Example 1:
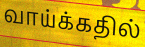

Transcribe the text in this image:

வாய்க்கதில்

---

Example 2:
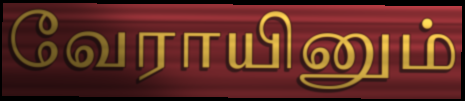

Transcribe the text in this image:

வேராயினும்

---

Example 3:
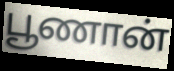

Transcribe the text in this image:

பூணான்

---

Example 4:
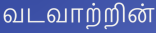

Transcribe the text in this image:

வடவாற்றின்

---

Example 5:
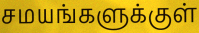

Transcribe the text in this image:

சமயங்களுக்குள்